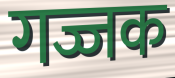
गज्जक